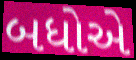
બધોએ